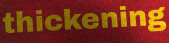
thickening